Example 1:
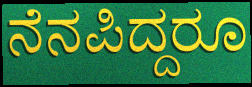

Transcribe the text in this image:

ನೆನಪಿದ್ದರೂ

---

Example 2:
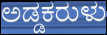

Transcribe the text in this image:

ಅಡ್ಡಕರುಳು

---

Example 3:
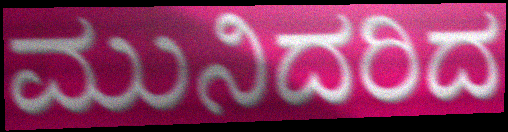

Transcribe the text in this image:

ಮುನಿದರಿದ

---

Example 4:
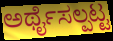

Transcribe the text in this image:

ಅರ್ಥೈಸಲ್ಪಟ್ಟ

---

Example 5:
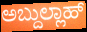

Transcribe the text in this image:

ಅಬ್ದುಲ್ಲಾಹ್